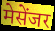
मेसेंजर